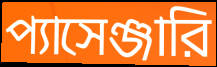
প্যাসেঞ্জারি